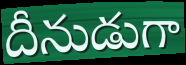
దీనుడుగా